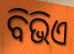
ବିଭିଏ